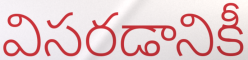
విసరడానికీ